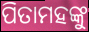
ପିତାମହଙ୍କୁ